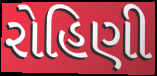
રોહિણી